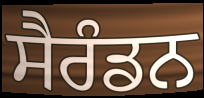
ਸੈਰੰਡਨ